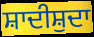
ਸ਼ਾਦੀਸ਼ੁਦਾ